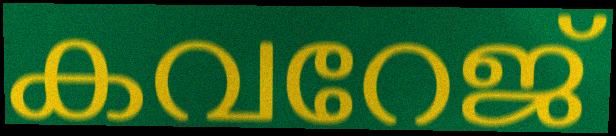
കവറേജ്